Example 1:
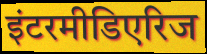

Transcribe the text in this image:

इंटरमीडिएरिज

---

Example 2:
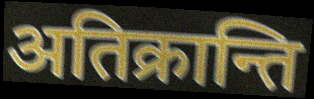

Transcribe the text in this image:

अतिक्रान्ति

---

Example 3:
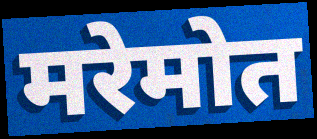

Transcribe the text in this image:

मरेमोत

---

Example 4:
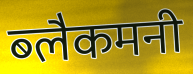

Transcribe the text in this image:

ब्‍लैकमनी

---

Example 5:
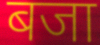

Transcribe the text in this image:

बजा